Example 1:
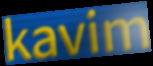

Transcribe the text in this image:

kavim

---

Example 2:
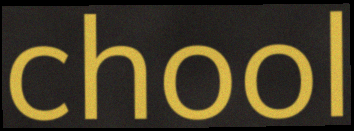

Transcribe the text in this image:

chool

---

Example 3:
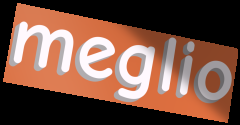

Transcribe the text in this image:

meglio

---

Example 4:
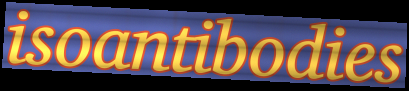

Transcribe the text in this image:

isoantibodies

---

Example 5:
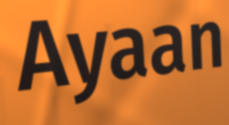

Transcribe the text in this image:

Ayaan